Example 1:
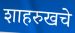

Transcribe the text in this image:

शाहरुखचे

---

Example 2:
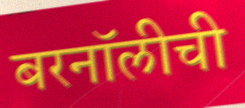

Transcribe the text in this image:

बरनॉलीची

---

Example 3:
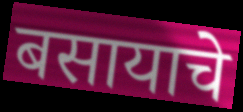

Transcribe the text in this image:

बसायाचे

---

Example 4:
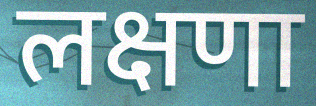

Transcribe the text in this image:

लक्षणा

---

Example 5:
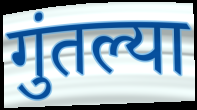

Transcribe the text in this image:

गुंतल्या